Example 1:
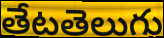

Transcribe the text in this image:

తేటతెలుగు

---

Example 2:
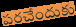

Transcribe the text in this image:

పరచేందుకు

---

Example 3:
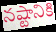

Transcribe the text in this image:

నష్టానికి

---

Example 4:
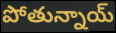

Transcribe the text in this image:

పోతున్నాయ్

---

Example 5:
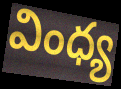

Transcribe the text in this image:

వింధ్య